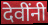
देवींनी